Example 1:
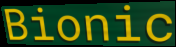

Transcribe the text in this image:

Bionic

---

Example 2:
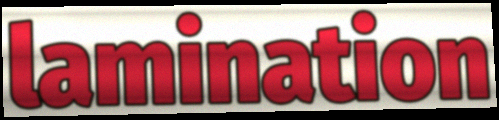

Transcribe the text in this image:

lamination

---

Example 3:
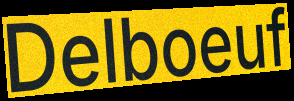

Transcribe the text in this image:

Delboeuf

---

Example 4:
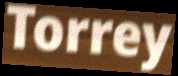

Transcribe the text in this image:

Torrey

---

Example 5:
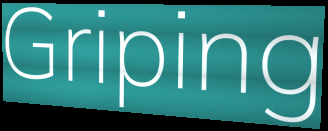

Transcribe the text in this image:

Griping